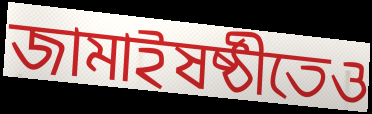
জামাইষষ্ঠীতেও